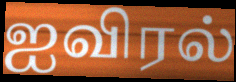
ஐவிரல்